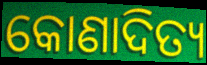
କୋଣାଦିତ୍ୟ